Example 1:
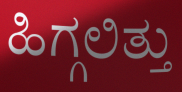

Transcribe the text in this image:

ಹಿಗ್ಗಲಿತ್ತು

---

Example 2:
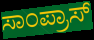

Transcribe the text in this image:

ಸಾಂಪ್ರಾಸ್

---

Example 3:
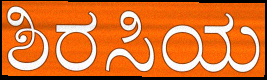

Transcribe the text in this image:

ಶಿರಸಿಯ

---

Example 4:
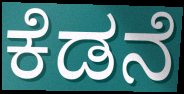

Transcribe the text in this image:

ಕೆಡನೆ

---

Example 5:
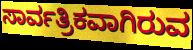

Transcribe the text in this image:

ಸಾರ್ವತ್ರಿಕವಾಗಿರುವ